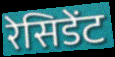
रेसिडेंट